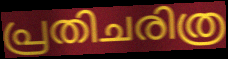
പ്രതിചരിത്ര